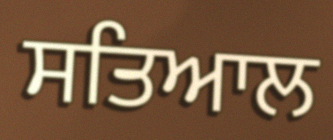
ਸਤਿਆਲ